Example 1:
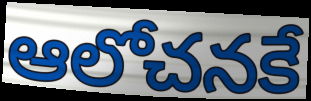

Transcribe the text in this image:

ఆలోచనకే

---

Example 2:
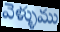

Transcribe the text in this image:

వెళ్ళుము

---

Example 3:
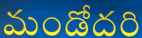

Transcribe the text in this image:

మండోదరి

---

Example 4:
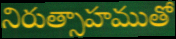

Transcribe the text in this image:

నిరుత్సాహముతో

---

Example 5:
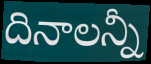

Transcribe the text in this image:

దినాలన్నీ